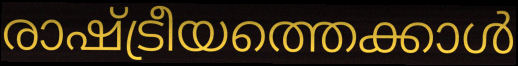
രാഷ്ട്രീയത്തെക്കാൾ